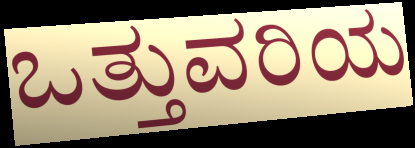
ಒತ್ತುವರಿಯ